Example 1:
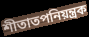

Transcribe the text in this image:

শীতাতপনিয়ন্ত্রক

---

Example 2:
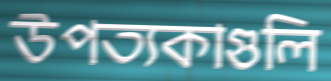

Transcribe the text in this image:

উপত্যকাগুলি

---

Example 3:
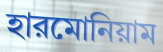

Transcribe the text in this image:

হারমোনিয়াম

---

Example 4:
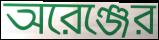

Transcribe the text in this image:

অরেঞ্জের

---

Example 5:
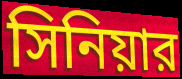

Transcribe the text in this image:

সিনিয়ার